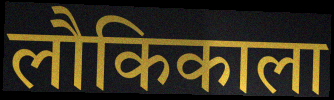
लौकिकाला